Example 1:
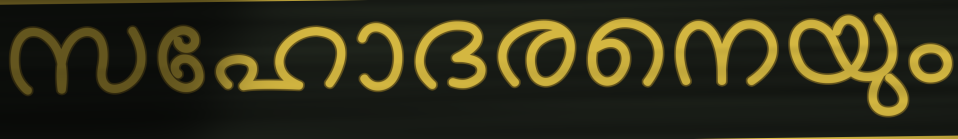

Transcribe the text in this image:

സഹോദരനെയും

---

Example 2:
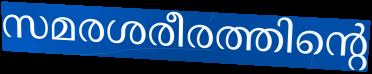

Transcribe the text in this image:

സമരശരീരത്തിന്റെ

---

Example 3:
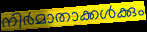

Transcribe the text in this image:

നിർമാതാക്കൾക്കും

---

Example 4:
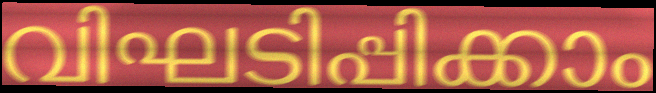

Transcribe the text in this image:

വിഘടിപ്പിക്കാം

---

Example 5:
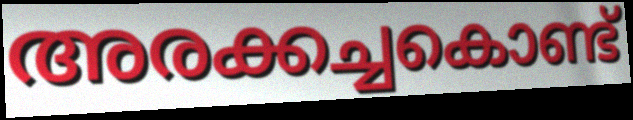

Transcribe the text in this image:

അരക്കച്ചകൊണ്ട്